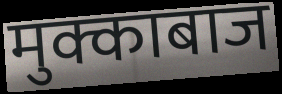
मुक्काबाज